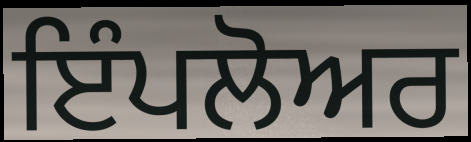
ਇੰਪਲੋਅਰ